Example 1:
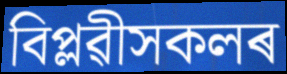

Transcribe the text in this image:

বিপ্লৱীসকলৰ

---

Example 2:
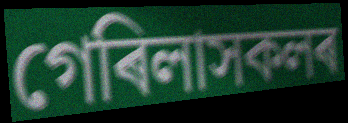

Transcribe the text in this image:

গেৰিলাসকলৰ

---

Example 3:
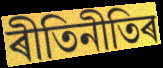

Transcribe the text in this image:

ৰীতিনীতিৰ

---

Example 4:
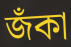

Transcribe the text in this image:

জঁকা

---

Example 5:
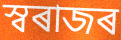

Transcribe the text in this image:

স্বৰাজৰ